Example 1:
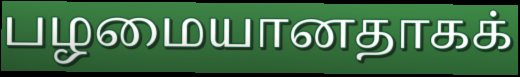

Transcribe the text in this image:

பழமையானதாகக்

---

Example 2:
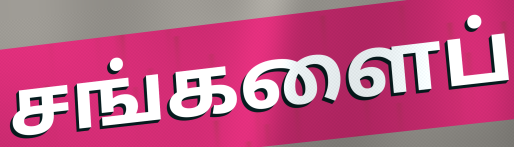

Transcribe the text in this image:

சங்களைப்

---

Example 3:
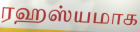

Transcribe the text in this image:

ரஹஸ்யமாக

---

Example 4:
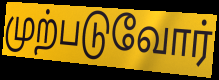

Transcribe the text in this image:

முற்படுவோர்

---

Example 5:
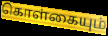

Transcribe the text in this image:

கொள்கையும்